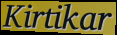
Kirtikar